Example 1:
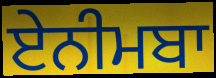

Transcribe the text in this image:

ਏਨੀਮਬਾ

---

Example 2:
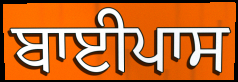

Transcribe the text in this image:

ਬਾਈਪਾਸ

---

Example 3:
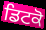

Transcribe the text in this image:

ਡਿਟਕੋ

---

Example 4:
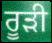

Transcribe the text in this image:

ਰੂੜੀ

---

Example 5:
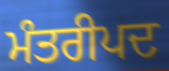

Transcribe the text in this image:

ਮੰਤਰੀਪਦ